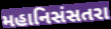
મહાનિસંસતરા